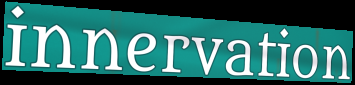
innervation